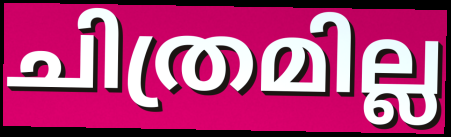
ചിത്രമില്ല